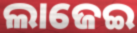
ଲାଜେଇ